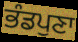
ਭੰਡਪੁਣਾ